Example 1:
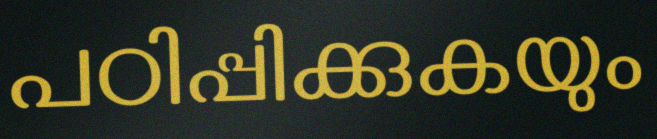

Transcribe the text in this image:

പഠിപ്പിക്കുകയും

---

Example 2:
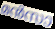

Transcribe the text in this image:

മൻസാ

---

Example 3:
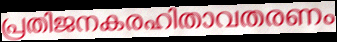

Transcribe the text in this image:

പ്രതിജനകരഹിതാവതരണം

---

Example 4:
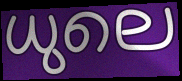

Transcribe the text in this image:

ധുലെ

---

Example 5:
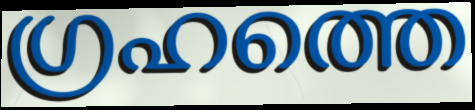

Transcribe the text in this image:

ഗ്രഹത്തെ